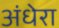
अंधेरा